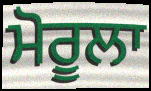
ਮੋਰੂਲਾ